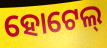
ହୋଟେଲ୍